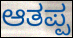
ಆತಪ್ಪ